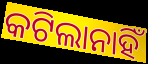
କଟିଲାନାହିଁ